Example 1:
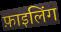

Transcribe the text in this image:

फ़ाइलिंग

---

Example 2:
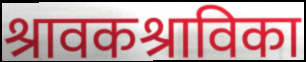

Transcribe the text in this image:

श्रावकश्राविका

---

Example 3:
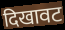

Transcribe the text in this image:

दिखावट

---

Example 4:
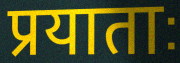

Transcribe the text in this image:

प्रयाताः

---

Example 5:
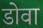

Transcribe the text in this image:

डोवा